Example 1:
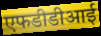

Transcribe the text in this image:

एफडीडीआई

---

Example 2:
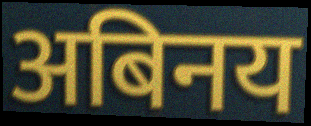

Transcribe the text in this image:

अबिनय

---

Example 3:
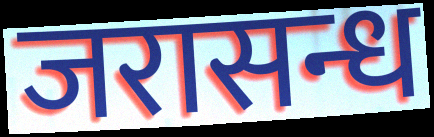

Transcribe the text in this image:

जरासन्ध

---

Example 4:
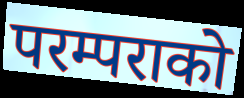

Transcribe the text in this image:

परम्पराको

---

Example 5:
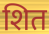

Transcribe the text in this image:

शित